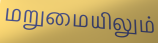
மறுமையிலும்